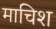
माचिश